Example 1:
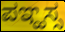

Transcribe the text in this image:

ಪಞ್ಹಸ್ಸ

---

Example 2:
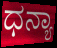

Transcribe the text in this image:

ಧನ್ಯಾ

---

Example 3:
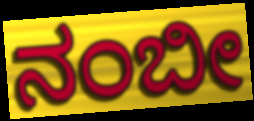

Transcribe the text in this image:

ನಂಬೀ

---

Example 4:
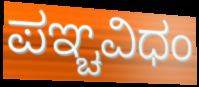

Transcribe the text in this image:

ಪಞ್ಚವಿಧಂ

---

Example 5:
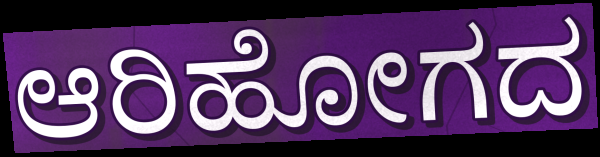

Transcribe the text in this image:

ಆರಿಹೋಗದ